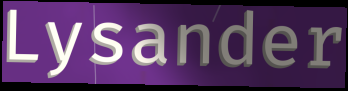
Lysander